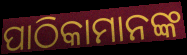
ପାଠିକାମାନଙ୍କ